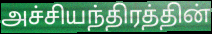
அச்சியந்திரத்தின்